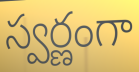
స్వర్ణంగా